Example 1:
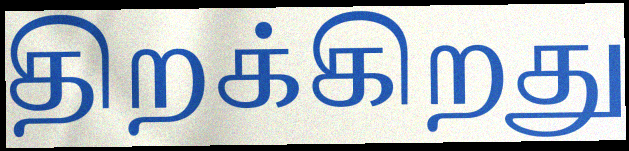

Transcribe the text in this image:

திறக்கிறது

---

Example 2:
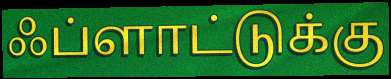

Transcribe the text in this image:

ஃப்ளாட்டுக்கு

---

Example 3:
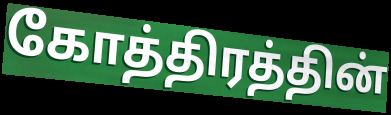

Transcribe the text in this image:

கோத்திரத்தின்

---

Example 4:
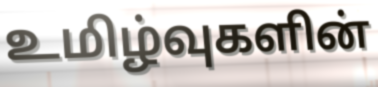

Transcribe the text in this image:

உமிழ்வுகளின்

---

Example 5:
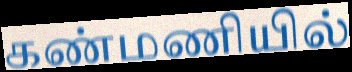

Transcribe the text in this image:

கண்மணியில்